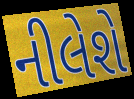
નીલેશે